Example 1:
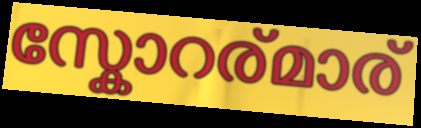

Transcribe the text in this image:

സ്കോറര്മാര്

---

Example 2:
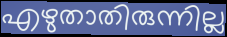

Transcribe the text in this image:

എഴുതാതിരുന്നില്ല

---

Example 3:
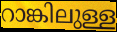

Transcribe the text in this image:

റാങ്കിലുള്ള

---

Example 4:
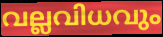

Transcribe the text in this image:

വല്ലവിധവും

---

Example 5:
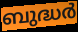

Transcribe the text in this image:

ബുദ്ധർ